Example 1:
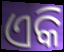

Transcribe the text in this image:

ଏକି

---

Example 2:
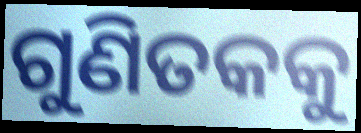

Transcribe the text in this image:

ଗୁଣିତକକୁ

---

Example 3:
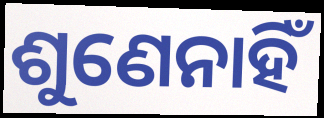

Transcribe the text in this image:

ଶୁଣେନାହିଁ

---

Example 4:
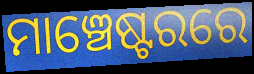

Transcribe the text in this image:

ମାଞ୍ଚେଷ୍ଟରରେ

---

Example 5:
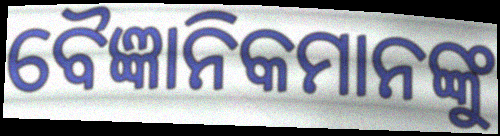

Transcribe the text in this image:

ବୈଜ୍ଞାନିକମାନଙ୍କୁ